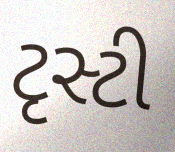
ટૃસ્ટી